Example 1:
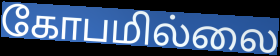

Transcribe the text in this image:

கோபமில்லை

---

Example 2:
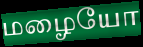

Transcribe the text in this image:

மழையோ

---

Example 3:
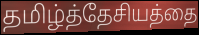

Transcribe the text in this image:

தமிழ்த்தேசியத்தை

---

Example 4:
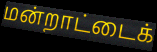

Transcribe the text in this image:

மன்றாட்டைக்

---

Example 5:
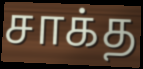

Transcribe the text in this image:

சாக்த